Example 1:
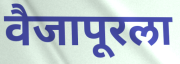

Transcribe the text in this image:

वैजापूरला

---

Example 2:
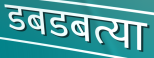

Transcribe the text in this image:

डबडबत्या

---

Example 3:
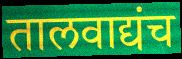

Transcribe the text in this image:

तालवाद्यंच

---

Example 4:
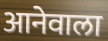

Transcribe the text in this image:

आनेवाला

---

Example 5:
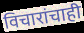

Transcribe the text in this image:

विचारांचाही